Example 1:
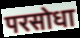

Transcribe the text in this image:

परसोधा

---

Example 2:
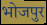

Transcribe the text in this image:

भोजपुर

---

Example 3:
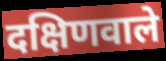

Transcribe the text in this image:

दक्षिणवाले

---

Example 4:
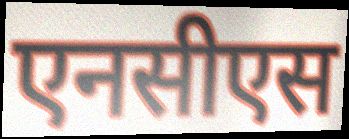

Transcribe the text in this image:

एनसीएस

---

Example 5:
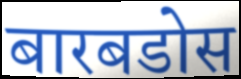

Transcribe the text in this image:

बारबडोस